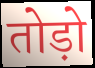
तोड़ो